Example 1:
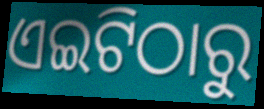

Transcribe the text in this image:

ଏଇଟିଠାରୁ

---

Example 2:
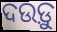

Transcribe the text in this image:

ଦଉଡ଼ୁ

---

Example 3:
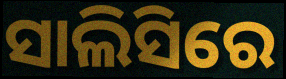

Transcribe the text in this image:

ସାଲିସିରେ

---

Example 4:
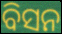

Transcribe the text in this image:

ବିସନ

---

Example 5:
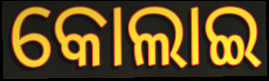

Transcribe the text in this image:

କୋଲାଇ